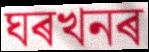
ঘৰখনৰ